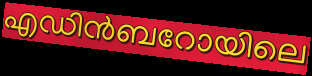
എഡിൻബറോയിലെ